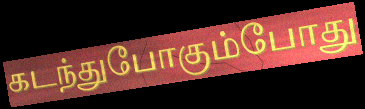
கடந்துபோகும்போது